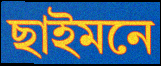
ছাইমনে